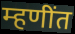
म्हणींत